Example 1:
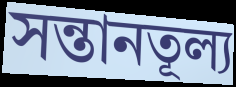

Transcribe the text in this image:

সন্তানতূল্য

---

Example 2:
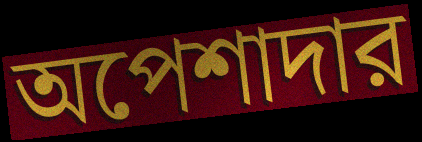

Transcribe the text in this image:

অপেশাদার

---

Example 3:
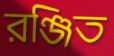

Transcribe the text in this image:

রঞ্জিত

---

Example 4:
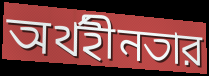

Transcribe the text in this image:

অর্থহীনতার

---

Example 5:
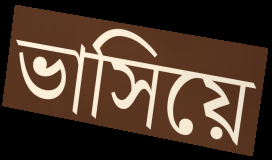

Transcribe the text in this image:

ভাসিয়ে